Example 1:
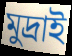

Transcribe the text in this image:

মুদ্রাই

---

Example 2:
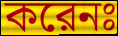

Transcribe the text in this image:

করেনঃ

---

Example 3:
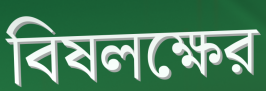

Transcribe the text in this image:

বিষলক্ষের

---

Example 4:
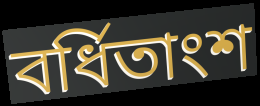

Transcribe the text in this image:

বর্ধিতাংশ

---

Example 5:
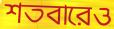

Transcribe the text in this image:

শতবারেও